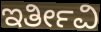
ಇರ್ತೀವಿ